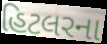
હિટલરના